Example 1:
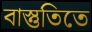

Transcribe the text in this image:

বাস্তুতিতে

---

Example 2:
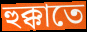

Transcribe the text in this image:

হুক্কাতে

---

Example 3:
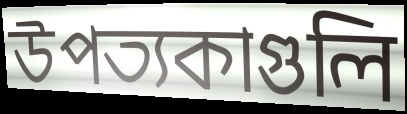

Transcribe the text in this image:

উপত্যকাগুলি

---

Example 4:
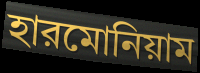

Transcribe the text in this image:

হারমোনিয়াম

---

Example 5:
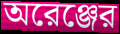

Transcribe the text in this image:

অরেঞ্জের